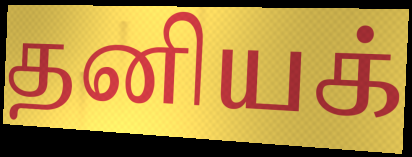
தனியக்